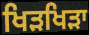
ਖਿੜਖਿੜਾ